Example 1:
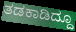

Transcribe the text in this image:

ತಡಕಾಡಿದ್ದೂ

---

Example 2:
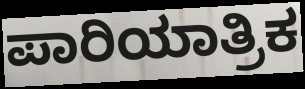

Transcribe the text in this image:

ಪಾರಿಯಾತ್ರಿಕ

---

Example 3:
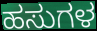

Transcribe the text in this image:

ಹಸುಗಳ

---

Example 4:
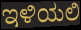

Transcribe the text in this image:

ಇಳಿಯಲಿ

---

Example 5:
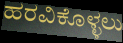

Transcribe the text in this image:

ಹರವಿಕೊಳ್ಳಲು